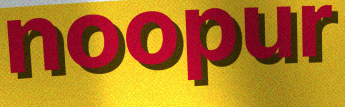
noopur